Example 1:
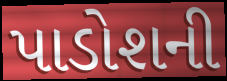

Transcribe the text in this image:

પાડોશની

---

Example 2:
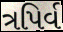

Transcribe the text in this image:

ત્રપિર્વ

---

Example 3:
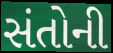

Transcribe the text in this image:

સંતોની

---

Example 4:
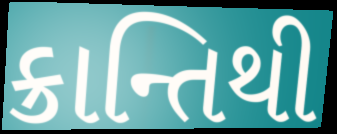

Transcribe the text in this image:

ક્રાન્તિથી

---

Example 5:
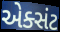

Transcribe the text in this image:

એક્સંટ